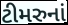
ટીમરુનાં